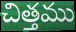
చిత్తము